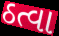
ઠત્વા